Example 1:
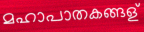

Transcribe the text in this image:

മഹാപാതകങ്ങള്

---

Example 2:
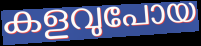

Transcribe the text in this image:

കളവുപോയ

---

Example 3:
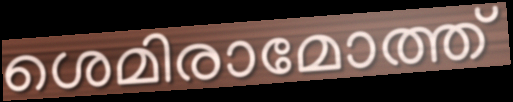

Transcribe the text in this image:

ശെമിരാമോത്ത്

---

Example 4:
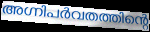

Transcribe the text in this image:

അഗ്നിപർവതത്തിന്റെ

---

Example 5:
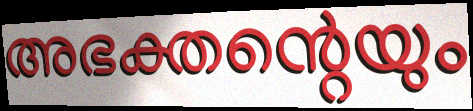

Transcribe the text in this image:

അഭക്തന്റെയും